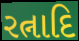
રત્નાદિ